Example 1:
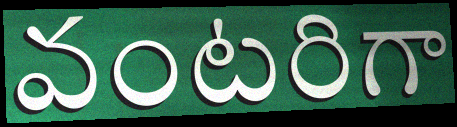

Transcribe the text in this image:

వంటరిగా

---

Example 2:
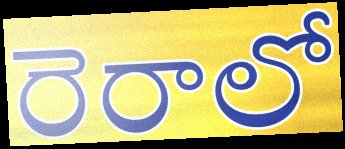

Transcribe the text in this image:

రెరాలో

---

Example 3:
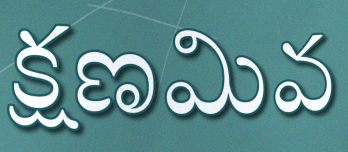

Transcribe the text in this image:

క్షణమివ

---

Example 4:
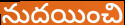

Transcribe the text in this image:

నుదయించి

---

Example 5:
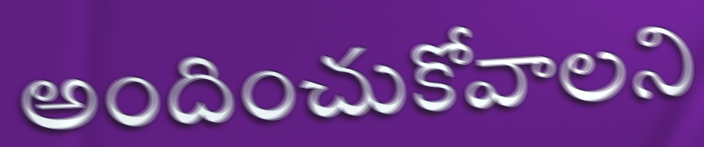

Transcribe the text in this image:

అందించుకోవాలని